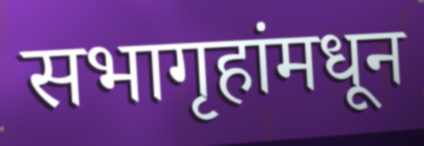
सभागृहांमधून